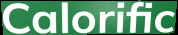
Calorific